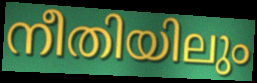
നീതിയിലും